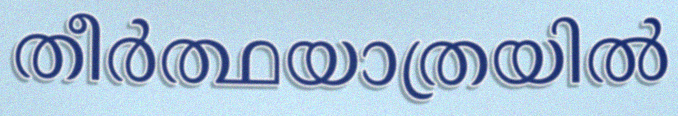
തീർത്ഥയാത്രയിൽ